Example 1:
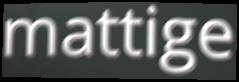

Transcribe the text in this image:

mattige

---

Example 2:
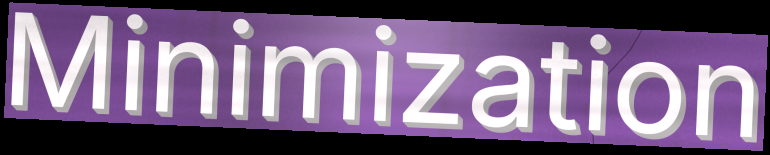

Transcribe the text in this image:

Minimization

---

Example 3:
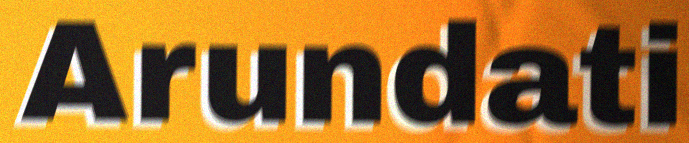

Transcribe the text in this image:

Arundati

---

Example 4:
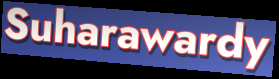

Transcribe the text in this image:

Suharawardy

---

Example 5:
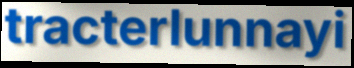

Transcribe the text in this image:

tracterlunnayi